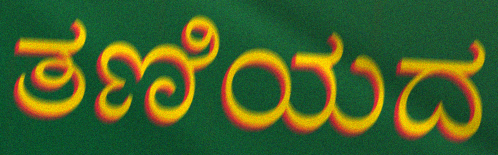
ತಣಿಯದ